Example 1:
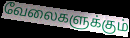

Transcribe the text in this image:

வேலைகளுக்கும்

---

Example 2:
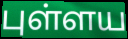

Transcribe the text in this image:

புள்ளய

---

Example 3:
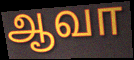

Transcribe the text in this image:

ஆவா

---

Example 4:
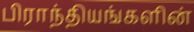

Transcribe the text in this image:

பிராந்தியங்களின்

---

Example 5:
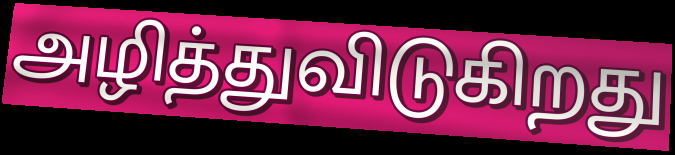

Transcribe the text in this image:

அழித்துவிடுகிறது